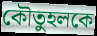
কৌতুহলকে